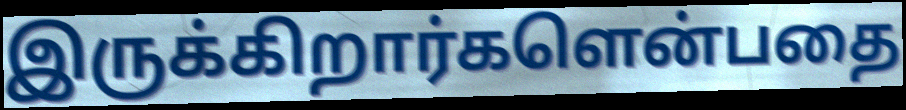
இருக்கிறார்களென்பதை